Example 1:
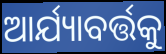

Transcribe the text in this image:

ଆର୍ଯ୍ୟାବର୍ତ୍ତକୁ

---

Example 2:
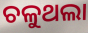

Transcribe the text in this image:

ଚଳୁଥଲା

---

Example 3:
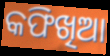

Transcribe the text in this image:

କଫିଖିଆ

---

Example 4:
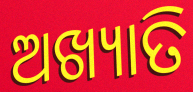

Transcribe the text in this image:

ଅଖ୍ୟାତି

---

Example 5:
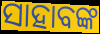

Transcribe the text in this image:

ସାହାବଙ୍କ